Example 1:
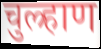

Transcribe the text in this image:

चुल्हाण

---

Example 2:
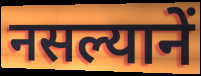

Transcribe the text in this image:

नसल्यानें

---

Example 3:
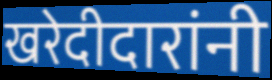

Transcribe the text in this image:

खरेदीदारांनी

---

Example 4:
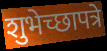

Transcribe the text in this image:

शुभेच्छापत्रे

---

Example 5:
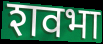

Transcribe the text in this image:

शवभा